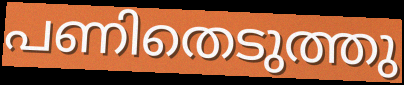
പണിതെടുത്തു